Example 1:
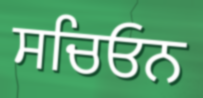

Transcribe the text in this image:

ਸਚਿਓਨ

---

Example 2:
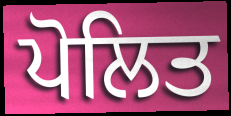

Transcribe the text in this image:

ਪੋਲਿਤ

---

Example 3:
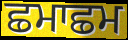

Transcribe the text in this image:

ਛਮਾਛਮ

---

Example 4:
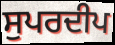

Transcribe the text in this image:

ਸੁਪਰਦੀਪ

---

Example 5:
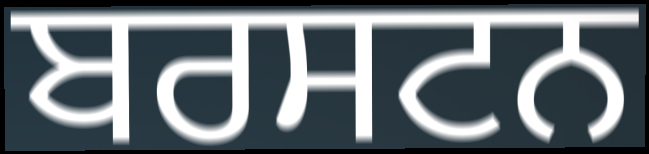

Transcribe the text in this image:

ਬਰਸਟਨ